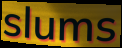
slums